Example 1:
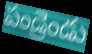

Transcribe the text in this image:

పండ్రెండు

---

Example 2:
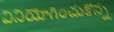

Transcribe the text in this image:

వినియోగించుకొన్న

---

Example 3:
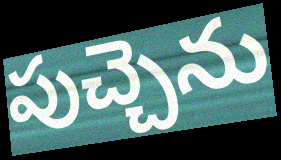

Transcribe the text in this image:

పుచ్చెను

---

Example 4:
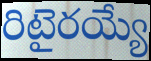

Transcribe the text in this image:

రిటైరయ్యే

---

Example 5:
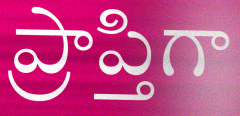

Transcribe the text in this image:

ప్రాప్తిగా